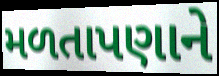
મળતાપણાને